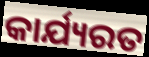
କାର୍ଯ୍ୟରତ